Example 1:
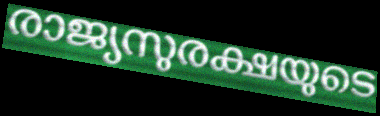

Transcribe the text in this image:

രാജ്യസുരക്ഷയുടെ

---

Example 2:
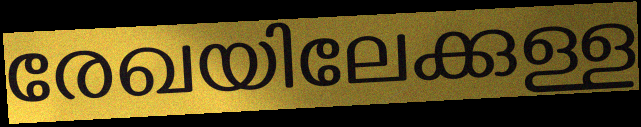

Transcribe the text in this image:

രേഖയിലേക്കുള്ള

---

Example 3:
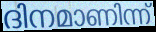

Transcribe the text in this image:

ദിനമാണിന്ന്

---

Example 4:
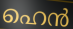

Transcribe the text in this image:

ഹെൻ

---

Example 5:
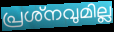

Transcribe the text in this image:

പ്രശ്‌നവുമില്ല